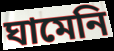
ঘামেনি